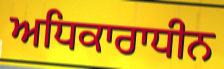
ਅਧਿਕਾਰਾਧੀਨ